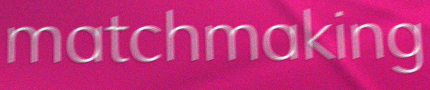
matchmaking